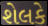
શેલકે